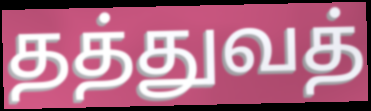
தத்துவத்